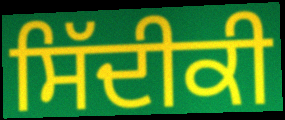
ਸਿੱਦੀਕੀ